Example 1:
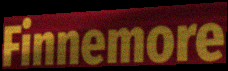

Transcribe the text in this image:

Finnemore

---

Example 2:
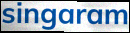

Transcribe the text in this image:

singaram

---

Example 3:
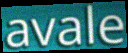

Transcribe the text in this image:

avale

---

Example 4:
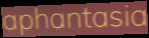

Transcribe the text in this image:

aphantasia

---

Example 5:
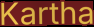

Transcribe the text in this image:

Kartha